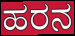
ಹರನ